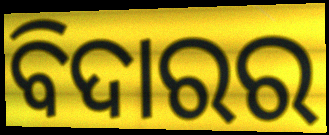
ବିଦାରର